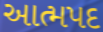
આત્મપદ